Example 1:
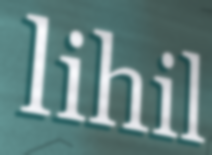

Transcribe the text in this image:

lihil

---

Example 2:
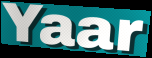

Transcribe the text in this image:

Yaar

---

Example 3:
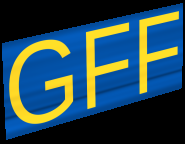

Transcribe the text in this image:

GFF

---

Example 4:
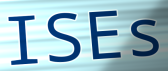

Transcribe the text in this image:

ISEs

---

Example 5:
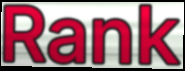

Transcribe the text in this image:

Rank